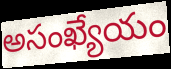
అసంఖ్యేయం